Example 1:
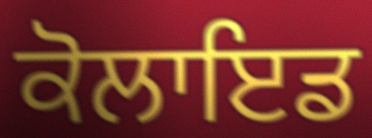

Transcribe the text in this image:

ਕੋਲਾਇਡ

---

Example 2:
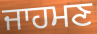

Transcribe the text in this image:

ਜਾਹਮਣ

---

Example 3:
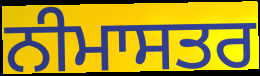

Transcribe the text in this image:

ਨੀਮਾਸਤਰ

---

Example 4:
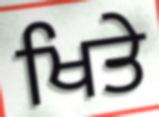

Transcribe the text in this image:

ਖਿਤੇ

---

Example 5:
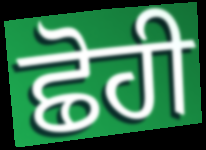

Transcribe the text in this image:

ਛੋਹੀ